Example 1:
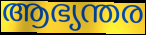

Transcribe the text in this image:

ആഭ്യന്തര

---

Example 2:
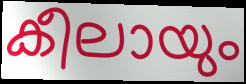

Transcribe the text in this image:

കീലായും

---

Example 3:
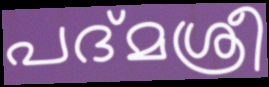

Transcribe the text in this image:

പദ്മശ്രീ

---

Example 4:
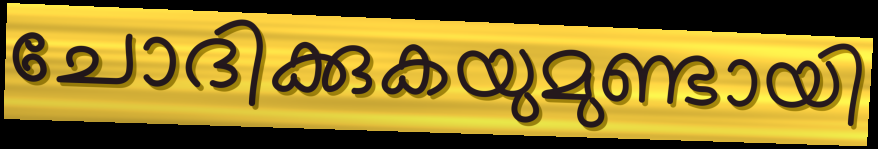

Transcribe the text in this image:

ചോദിക്കുകയുമുണ്ടായി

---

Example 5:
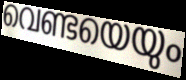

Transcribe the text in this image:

വെണ്ടയെയും